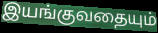
இயங்குவதையும்